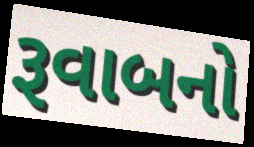
રૂવાબનો